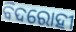
ବିଦରୋହୀ